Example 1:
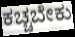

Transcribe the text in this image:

ಕಚ್ಚಬೇಕು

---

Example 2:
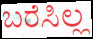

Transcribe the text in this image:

ಬರೆಸಿಲ್ಲ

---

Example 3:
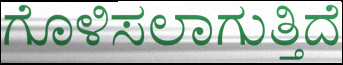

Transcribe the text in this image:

ಗೊಳಿಸಲಾಗುತ್ತಿದೆ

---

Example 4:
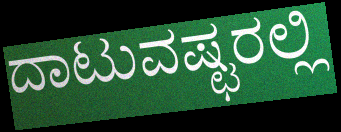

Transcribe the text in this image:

ದಾಟುವಷ್ಟರಲ್ಲಿ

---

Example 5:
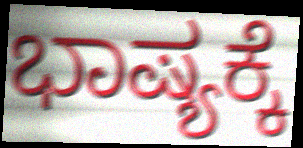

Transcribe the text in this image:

ಭಾಷ್ಯಕ್ಕೆ